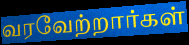
வரவேற்றார்கள்